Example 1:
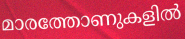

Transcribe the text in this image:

മാരത്തോണുകളിൽ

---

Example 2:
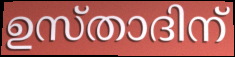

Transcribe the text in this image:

ഉസ്താദിന്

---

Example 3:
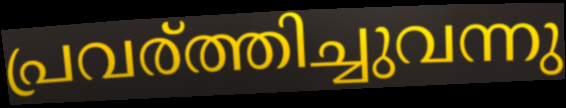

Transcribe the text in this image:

പ്രവര്ത്തിച്ചുവന്നു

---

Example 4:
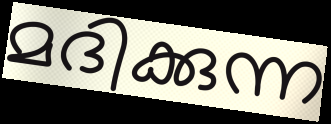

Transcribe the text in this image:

മദിക്കുന്ന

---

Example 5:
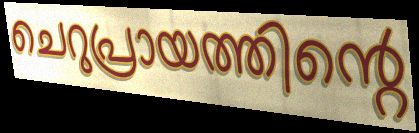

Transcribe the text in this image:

ചെറുപ്രായത്തിന്റെ